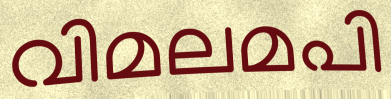
വിമലമപി